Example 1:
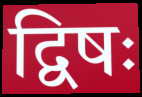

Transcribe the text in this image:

द्विषः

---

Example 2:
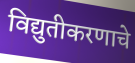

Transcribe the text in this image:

विद्युतीकरणाचे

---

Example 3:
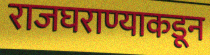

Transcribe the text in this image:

राजघराण्याकडून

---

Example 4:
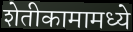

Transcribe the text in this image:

शेतीकामामध्ये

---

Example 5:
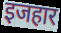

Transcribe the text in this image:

इजहार